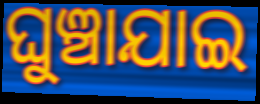
ଘୁଞ୍ଚାଯାଇ